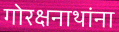
गोरक्षनाथांना